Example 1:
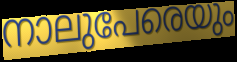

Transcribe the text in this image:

നാലുപേരെയും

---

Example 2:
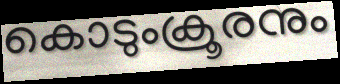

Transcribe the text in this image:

കൊടുംക്രൂരനും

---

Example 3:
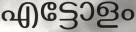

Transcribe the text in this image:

എട്ടോളം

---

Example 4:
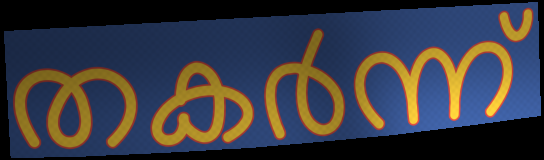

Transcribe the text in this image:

തകർന്ന്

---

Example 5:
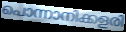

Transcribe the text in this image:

പൊന്നാനിക്കളരി